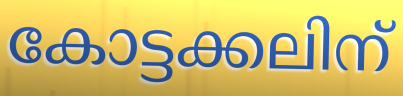
കോട്ടക്കലിന്